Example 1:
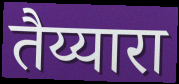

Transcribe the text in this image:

तैय्यारा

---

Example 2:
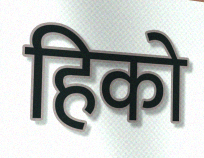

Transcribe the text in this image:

हिको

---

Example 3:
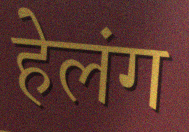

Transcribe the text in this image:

हेलंग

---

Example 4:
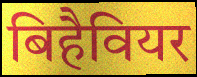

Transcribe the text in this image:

बिहैवियर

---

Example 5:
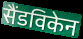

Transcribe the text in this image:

सैंडविकेन